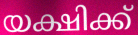
യക്ഷിക്ക്